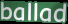
ballad